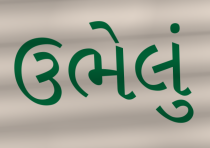
ઉભેલું